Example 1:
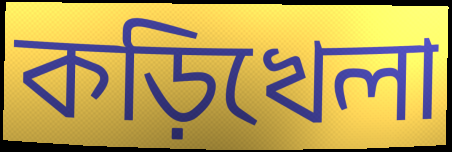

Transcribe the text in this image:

কড়িখেলা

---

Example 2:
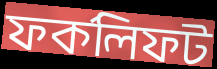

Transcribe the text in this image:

ফর্কলিফট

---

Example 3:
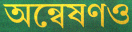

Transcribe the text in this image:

অন্বেষণও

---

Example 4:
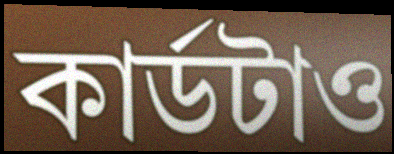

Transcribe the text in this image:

কার্ডটাও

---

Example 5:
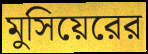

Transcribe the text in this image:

মুসিয়েরের